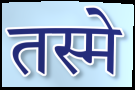
तस्मे